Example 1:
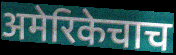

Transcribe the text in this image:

अमेरिकेचाच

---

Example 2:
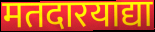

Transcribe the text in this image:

मतदारयाद्या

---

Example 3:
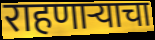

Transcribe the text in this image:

राहणाऱ्याचा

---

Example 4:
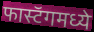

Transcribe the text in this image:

फास्टॅगमध्ये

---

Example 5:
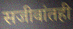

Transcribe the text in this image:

सजीवांतही